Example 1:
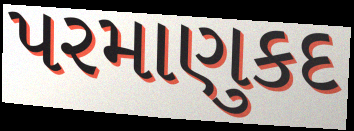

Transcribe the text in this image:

પરમાણુકદ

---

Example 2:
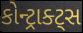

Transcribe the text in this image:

કોન્ટ્રાક્ટ્સ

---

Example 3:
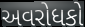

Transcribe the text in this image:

અવરોધકો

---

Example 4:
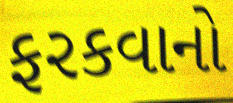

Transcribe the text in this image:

ફરકવાનો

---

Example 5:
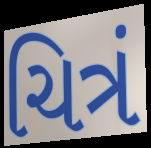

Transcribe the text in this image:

ચિત્રં